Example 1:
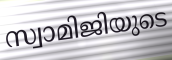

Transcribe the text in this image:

സ്വാമിജിയുടെ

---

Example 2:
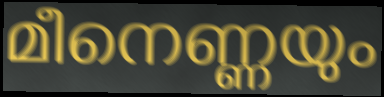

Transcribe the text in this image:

മീനെണ്ണയും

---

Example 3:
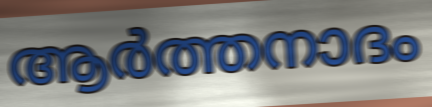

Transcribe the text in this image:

ആർത്തനാദം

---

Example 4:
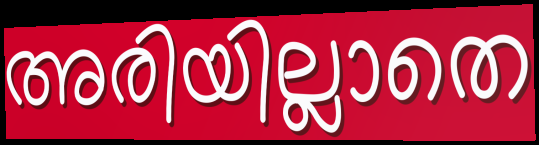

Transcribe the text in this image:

അരിയില്ലാതെ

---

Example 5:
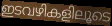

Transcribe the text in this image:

ഇടവഴികളിലൂടെ